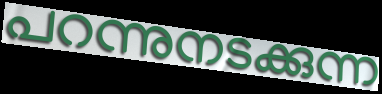
പറന്നുനടക്കുന്ന